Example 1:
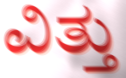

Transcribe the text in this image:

ವಿತ್ತು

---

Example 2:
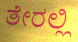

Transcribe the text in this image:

ತೇರಲ್ಲಿ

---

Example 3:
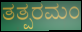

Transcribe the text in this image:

ತತ್ಪರಮಂ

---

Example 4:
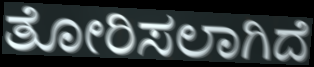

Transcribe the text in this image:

ತೋರಿಸಲಾಗಿದೆ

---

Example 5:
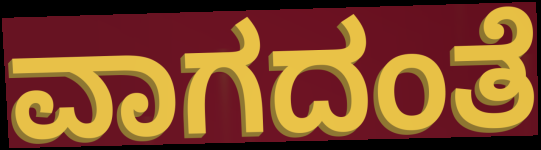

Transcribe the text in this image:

ವಾಗದಂತೆ